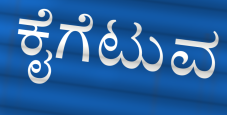
ಕೈಗೆಟುವ